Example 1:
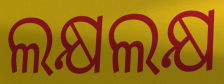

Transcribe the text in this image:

ଲକ୍ଷଲକ୍ଷ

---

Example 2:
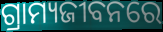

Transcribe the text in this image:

ଗ୍ରାମ୍ୟଜୀବନରେ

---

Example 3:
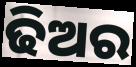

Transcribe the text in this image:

ଢିଅର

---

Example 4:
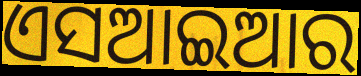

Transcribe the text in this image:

ଏସଆଇଆର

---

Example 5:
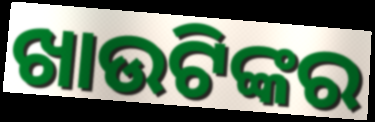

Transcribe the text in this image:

ଖାଉଟିଙ୍କର